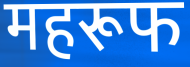
महरूफ